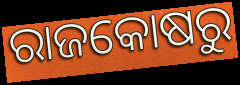
ରାଜକୋଷରୁ